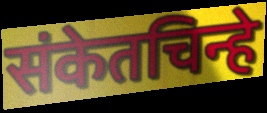
संकेतचिन्हे